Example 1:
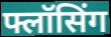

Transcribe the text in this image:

फ्लॉसिंग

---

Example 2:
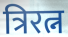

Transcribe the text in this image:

त्रिरत्न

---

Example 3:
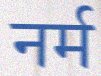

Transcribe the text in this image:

नर्म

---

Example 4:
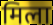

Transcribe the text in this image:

मिला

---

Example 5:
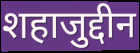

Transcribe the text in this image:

शहाजुद्दीन